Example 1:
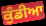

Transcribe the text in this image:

ਕੁੰਡੀਆ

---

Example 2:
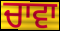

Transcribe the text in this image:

ਚਾਵਾ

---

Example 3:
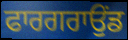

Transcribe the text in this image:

ਫਾਰਗਰਾਉਂਡ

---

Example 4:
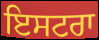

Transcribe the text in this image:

ਇਸਟਰਾ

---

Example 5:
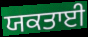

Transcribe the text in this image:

ਯਕਤਾਈ